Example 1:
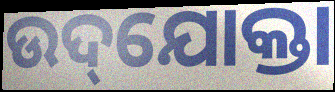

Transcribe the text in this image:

ଉଦ୍‌ଯୋକ୍ତା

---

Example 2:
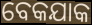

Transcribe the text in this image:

ବେକଯାକ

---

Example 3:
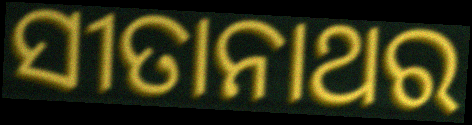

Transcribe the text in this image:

ସୀତାନାଥର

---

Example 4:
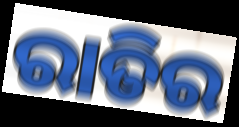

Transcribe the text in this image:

ରାତିର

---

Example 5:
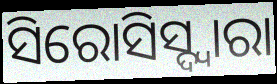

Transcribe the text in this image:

ସିରୋସିସ୍ଦ୍ୱାରା